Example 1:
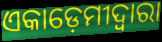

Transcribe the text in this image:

ଏକାଡ଼େମୀଦ୍ଵାରା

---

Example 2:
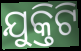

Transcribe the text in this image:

ଯୁକ୍ତିଟି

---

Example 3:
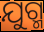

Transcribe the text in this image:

ଯୁଗ୍ମ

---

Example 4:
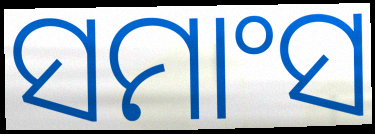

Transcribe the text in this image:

ସମାଂସ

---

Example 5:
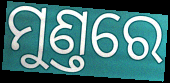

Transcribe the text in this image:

ମୁଣ୍ତରେ